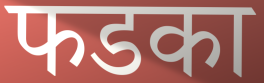
फडका